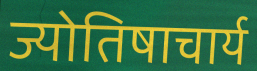
ज्योतिषाचार्य